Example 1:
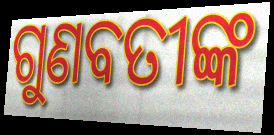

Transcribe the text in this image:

ଗୁଣବତୀଙ୍କ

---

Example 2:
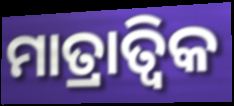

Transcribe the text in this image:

ମାତ୍ରାତ୍ଵିକ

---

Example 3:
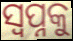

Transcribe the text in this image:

ସ୍ଵପ୍ନକୁ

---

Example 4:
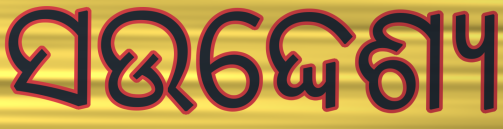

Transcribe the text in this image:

ସଉଦ୍ଦେଶ୍ୟ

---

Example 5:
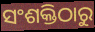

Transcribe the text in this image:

ସଂଶକ୍ତିଠାରୁ